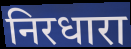
निरधारा